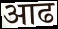
आढ